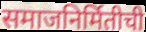
समाजनिर्मितीची